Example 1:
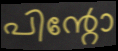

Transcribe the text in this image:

പിന്റോ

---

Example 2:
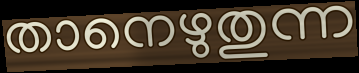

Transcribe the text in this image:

താനെഴുതുന്ന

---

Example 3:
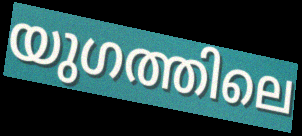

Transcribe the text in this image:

യുഗത്തിലെ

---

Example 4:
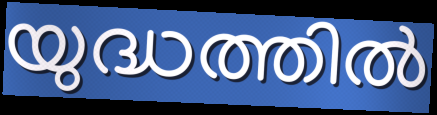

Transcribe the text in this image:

യുദ്ധത്തിൽ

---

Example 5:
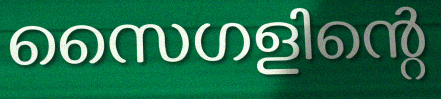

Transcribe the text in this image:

സൈഗളിന്റെ